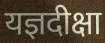
यज्ञदीक्षा